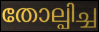
തോല്പിച്ച